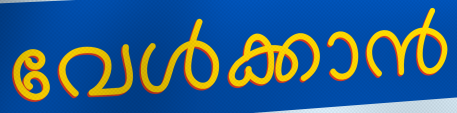
വേൾക്കാൻ